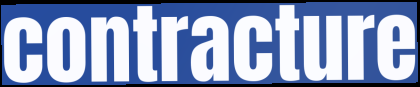
contracture